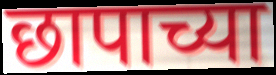
छापाच्या